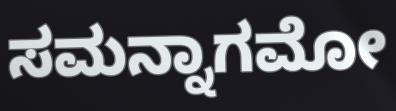
ಸಮನ್ನಾಗಮೋ